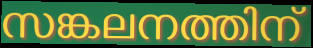
സങ്കലനത്തിന്